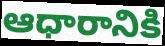
ఆధారానికి